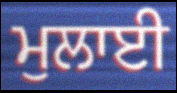
ਮੁਲਾਈ